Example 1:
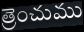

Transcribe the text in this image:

త్రెంచుము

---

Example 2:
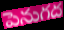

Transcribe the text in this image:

పెనుగద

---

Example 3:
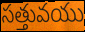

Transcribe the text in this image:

సత్తువయు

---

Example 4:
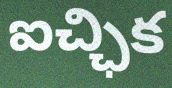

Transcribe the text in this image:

ఐచ్ఛిక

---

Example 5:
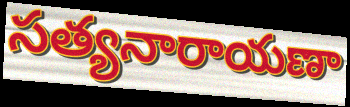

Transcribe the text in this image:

సత్యనారాయణా